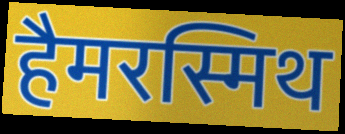
हैमरस्मिथ